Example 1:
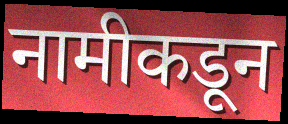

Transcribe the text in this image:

नामीकडून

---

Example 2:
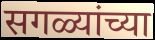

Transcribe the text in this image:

सगळ्यांच्या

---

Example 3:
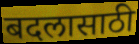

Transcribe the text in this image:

बदलासाठी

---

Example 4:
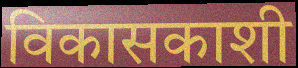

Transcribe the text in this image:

विकासकाशी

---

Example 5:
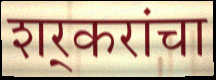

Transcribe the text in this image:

शर्करांचा